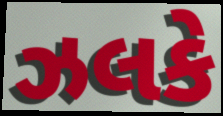
ઝલકે